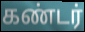
கண்டர்